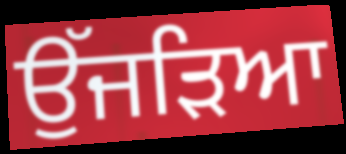
ਉੱਜੜਿਆ